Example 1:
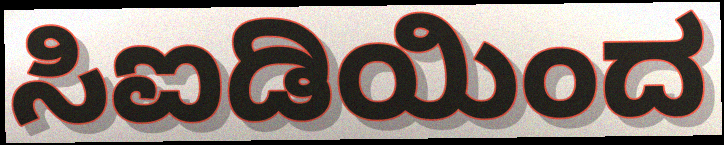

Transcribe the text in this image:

ಸಿಐಡಿಯಿಂದ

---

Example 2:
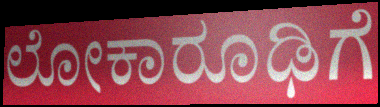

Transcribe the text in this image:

ಲೋಕಾರೂಢಿಗೆ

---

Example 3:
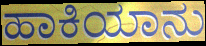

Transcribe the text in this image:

ಹಾಕಿಯಾನು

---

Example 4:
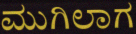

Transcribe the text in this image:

ಮುಗಿಲಾಗ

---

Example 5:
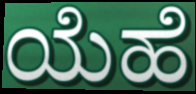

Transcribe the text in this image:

ಯೆಹೆ